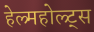
हेल्महोल्ट्स